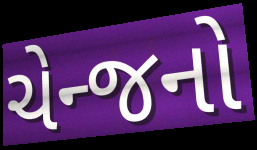
ચેન્જનો